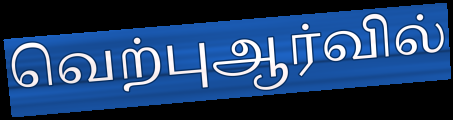
வெற்புஆர்வில்